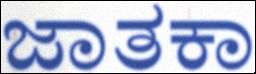
ಜಾತಕಾ